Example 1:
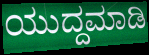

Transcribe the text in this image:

ಯುದ್ದಮಾಡಿ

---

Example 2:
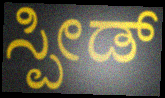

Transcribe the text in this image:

ಸ್ಪೀಡ್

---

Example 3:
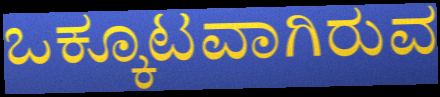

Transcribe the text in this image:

ಒಕ್ಕೂಟವಾಗಿರುವ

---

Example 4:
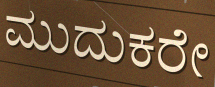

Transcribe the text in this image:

ಮುದುಕರೇ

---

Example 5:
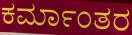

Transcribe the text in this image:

ಕರ್ಮಾಂತರ